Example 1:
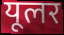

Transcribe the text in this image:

यूलर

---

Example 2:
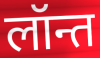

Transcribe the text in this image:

लॉन्त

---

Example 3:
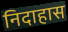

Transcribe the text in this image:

निदाहास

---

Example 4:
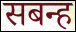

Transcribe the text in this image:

सबन्ह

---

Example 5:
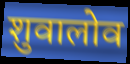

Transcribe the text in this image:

शुवालोव